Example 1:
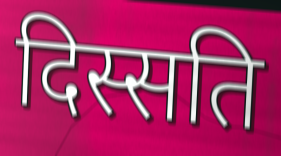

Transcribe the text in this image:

दिस्सति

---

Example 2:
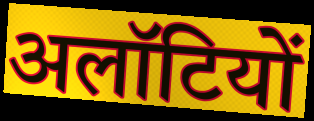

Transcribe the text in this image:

अलॉटियों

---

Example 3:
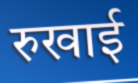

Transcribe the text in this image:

रुखाई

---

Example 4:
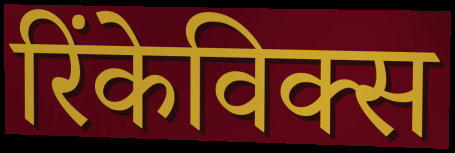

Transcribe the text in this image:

रिंकेविक्स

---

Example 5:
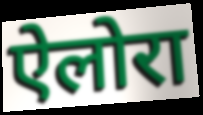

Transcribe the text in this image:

ऐलोरा